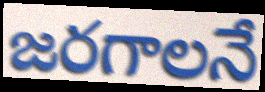
జరగాలనే